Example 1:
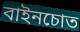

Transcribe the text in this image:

বাইনচোত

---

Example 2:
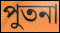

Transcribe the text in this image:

পুতনা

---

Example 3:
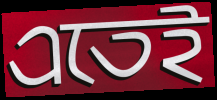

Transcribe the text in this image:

এতেই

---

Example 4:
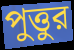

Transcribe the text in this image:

পুত্তুর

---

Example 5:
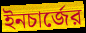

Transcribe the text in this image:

ইনচার্জের